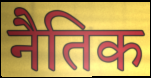
नैतिक